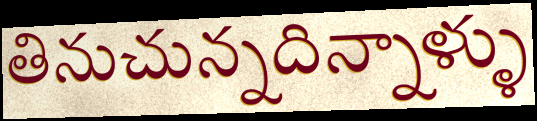
తినుచున్నదిన్నాళ్ళు